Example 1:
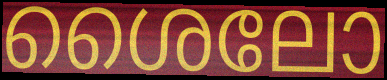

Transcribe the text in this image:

ശൈലോ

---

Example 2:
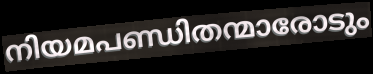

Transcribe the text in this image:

നിയമപണ്ഡിതന്മാരോടും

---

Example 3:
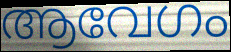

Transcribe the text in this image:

ആവേഗം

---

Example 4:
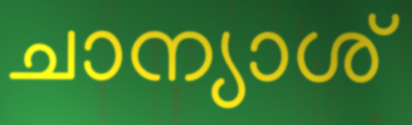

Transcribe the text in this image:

ചാന്യാശ്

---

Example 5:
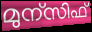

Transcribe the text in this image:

മുന്സിഫ്